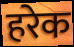
हरेक